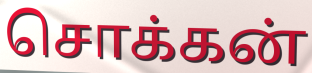
சொக்கன்